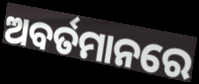
ଅବର୍ତମାନରେ